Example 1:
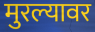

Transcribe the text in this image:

मुरल्यावर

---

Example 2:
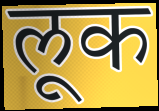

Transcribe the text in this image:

लूक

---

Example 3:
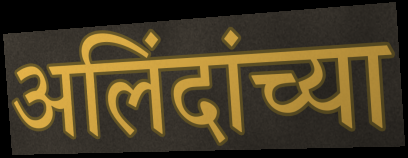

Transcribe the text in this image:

अलिंदांच्या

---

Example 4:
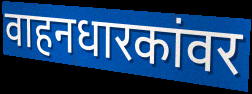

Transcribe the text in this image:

वाहनधारकांवर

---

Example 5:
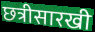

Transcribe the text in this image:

छत्रीसारखी